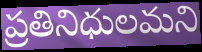
ప్రతినిధులమని